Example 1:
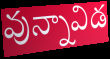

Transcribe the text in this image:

వున్నావిడ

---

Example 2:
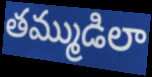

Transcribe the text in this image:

తమ్ముడిలా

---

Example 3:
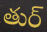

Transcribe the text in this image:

తుర్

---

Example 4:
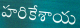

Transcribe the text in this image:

హరికేశాయ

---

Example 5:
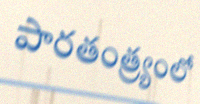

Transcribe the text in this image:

పారతంత్ర్యంలో